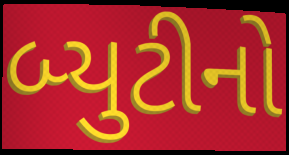
બ્યુટીનો